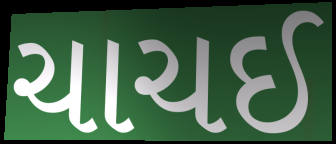
ચાચઈ